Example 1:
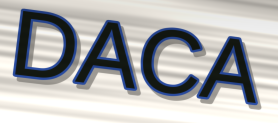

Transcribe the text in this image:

DACA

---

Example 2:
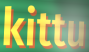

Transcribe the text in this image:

kittu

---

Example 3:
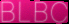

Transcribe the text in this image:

BLBC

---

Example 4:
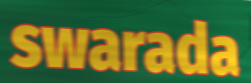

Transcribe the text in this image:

swarada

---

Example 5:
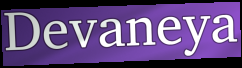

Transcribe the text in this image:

Devaneya